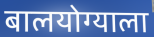
बालयोग्याला